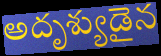
అదృశ్యుడైన